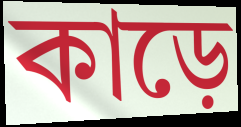
কাড়ে